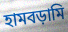
হামবড়ামি